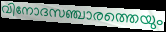
വിനോദസഞ്ചാരത്തെയും